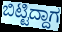
ಬಿಟ್ಟಿದ್ದಾಗ